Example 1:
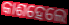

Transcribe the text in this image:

କାଶହେଲେ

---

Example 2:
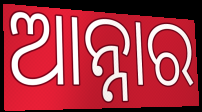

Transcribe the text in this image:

ଆନ୍ନାର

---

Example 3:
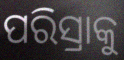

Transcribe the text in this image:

ପରିସ୍ରାକୁ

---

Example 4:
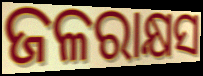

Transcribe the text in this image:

ଜଳରାକ୍ଷସ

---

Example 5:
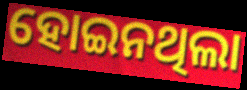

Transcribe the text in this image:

ହୋଇନଥିଲା